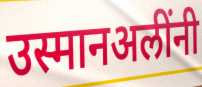
उस्मानअलींनी